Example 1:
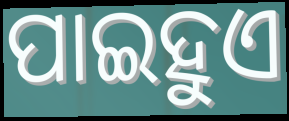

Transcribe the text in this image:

ପାଇହୁଏ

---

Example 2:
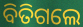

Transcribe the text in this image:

ବିତିଗଲେ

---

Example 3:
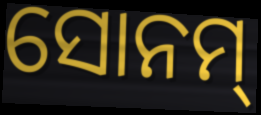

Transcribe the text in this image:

ସୋନମ୍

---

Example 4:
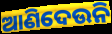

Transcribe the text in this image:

ଆଣିଦେଉନି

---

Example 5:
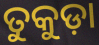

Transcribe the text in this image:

ତୁକୁଡ଼ା